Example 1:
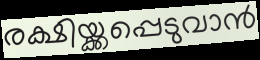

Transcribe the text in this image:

രക്ഷിയ്ക്കപ്പെടുവാൻ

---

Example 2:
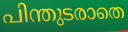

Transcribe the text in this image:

പിന്തുടരാതെ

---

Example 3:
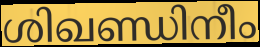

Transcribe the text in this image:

ശിഖണ്ഡിനീം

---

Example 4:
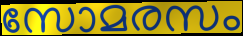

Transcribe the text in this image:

സോമരസം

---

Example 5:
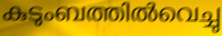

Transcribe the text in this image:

കുടുംബത്തിൽവെച്ചു